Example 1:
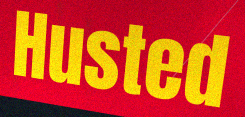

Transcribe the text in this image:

Husted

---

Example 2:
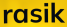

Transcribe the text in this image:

rasik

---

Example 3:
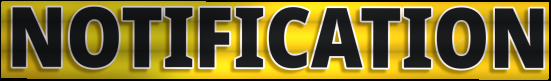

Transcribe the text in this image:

NOTIFICATION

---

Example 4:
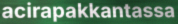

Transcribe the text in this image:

acirapakkantassa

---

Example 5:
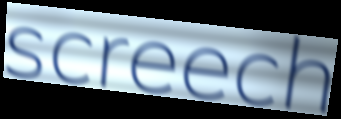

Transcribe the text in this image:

screech